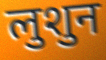
लुशुन